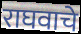
राघवाचे